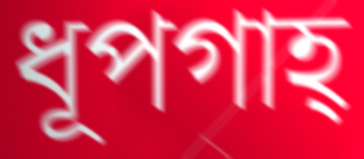
ধূপগাহ্